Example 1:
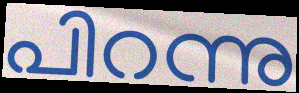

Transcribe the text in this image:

പിറന്നു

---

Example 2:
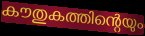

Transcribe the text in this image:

കൗതുകത്തിന്റെയും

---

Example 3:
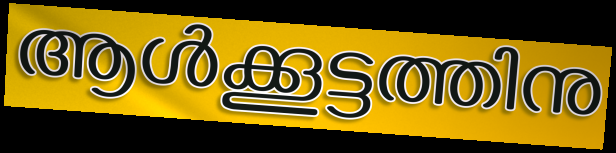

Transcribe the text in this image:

ആൾക്കൂട്ടത്തിനു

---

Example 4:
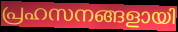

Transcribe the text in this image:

പ്രഹസനങ്ങളായി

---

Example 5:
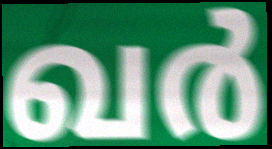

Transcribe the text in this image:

ഖർ